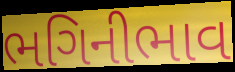
ભગિનીભાવ